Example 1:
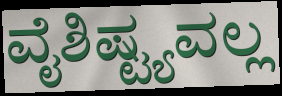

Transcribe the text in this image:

ವೈಶಿಷ್ಟ್ಯವಲ್ಲ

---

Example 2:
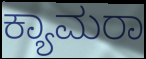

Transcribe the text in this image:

ಕ್ಯಾಮರಾ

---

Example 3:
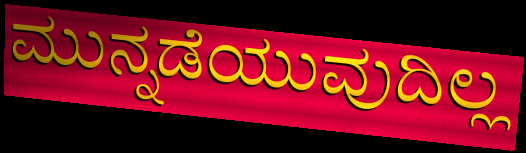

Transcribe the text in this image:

ಮುನ್ನಡೆಯುವುದಿಲ್ಲ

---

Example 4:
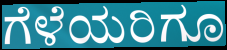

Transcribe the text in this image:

ಗೆಳೆಯರಿಗೂ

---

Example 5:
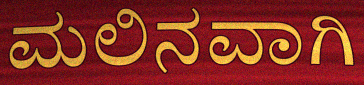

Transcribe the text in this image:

ಮಲಿನವಾಗಿ